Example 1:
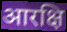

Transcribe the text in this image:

आरक्षि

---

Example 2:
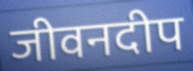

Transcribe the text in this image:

जीवनदीप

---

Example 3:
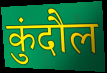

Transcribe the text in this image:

कुंदौल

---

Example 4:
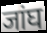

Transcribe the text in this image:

जांघ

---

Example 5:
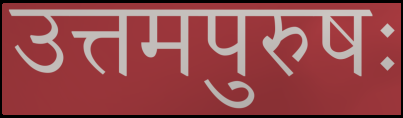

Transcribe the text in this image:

उत्तमपुरुषः